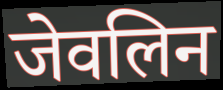
जेवलिन